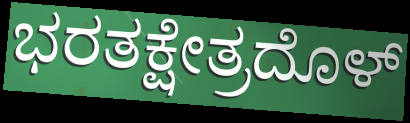
ಭರತಕ್ಷೇತ್ರದೊಳ್